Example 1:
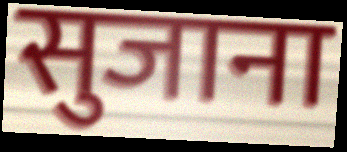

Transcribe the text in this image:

सुजाना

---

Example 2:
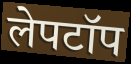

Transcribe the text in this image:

लेपटॉप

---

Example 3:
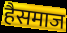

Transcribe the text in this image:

हैसमाज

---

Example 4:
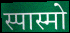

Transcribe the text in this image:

स्पास्मो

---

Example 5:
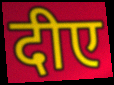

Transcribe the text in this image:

दीए